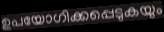
ഉപയോഗിക്കപ്പെടുകയും